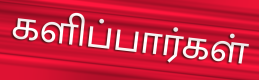
களிப்பார்கள்